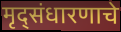
मृद्संधारणाचे